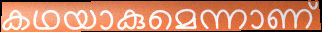
കഥയാകുമെന്നാണ്